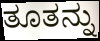
ತೂತನ್ನು